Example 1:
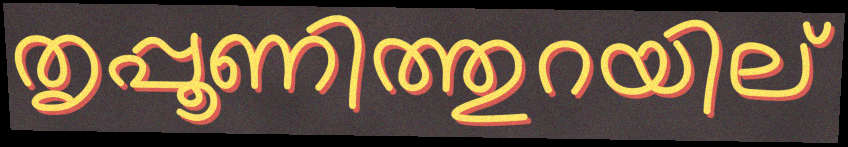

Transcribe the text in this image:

തൃപ്പൂണിത്തുറയില്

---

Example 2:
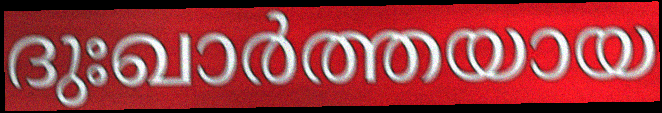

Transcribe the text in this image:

ദുഃഖാർത്തയായ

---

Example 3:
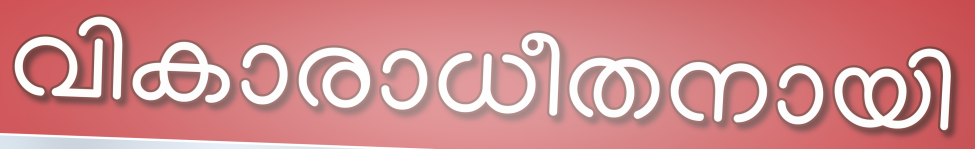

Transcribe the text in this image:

വികാരാധീതനായി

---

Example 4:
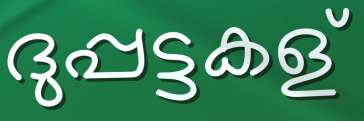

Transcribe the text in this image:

ദുപ്പട്ടകള്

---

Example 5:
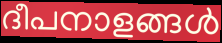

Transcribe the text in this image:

ദീപനാളങ്ങൾ